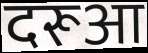
दरूआ